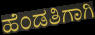
ಹೆಂಡತಿಗಾಗಿ